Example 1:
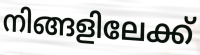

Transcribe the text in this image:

നിങ്ങളിലേക്ക്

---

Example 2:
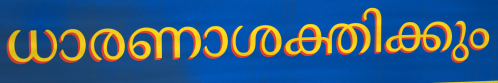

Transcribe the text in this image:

ധാരണാശക്തിക്കും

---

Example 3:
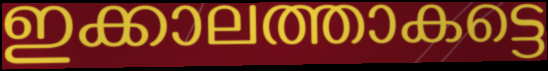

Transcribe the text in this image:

ഇക്കാലത്താകട്ടെ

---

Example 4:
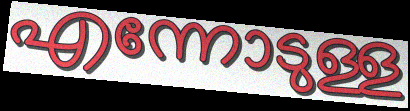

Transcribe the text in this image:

എന്നോടുള്ള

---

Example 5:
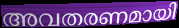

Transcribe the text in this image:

അവതരണമായി